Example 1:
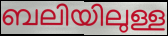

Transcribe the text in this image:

ബലിയിലുള്ള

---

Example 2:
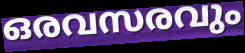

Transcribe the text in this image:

ഒരവസരവും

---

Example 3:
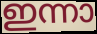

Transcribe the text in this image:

ഇന്നാ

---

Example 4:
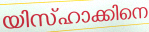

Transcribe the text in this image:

യിസ്ഹാക്കിനെ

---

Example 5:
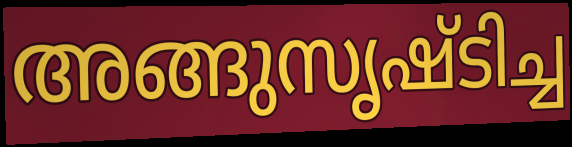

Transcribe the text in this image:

അങ്ങുസൃഷ്ടിച്ച